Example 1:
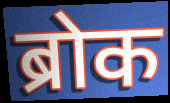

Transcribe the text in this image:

ब्रोक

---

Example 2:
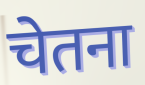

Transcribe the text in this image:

चेतना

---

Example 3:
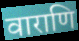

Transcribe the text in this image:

वाराणि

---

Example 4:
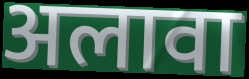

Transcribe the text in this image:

अलावा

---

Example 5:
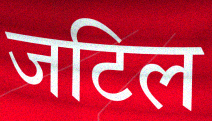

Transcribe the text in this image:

जटिल